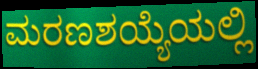
ಮರಣಶಯ್ಯೆಯಲ್ಲಿ